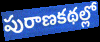
పురాణకథల్లో